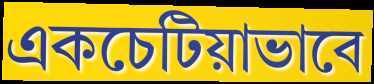
একচেটিয়াভাবে